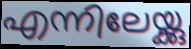
എന്നിലേയ്ക്കു